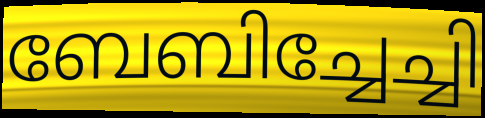
ബേബിച്ചേച്ചി